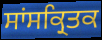
ਸਾਂਸਕ੍ਰਿਤਕ